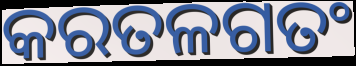
କରତଳଗତଂ